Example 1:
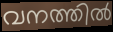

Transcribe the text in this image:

വനത്തിൽ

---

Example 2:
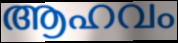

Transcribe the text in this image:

ആഹവം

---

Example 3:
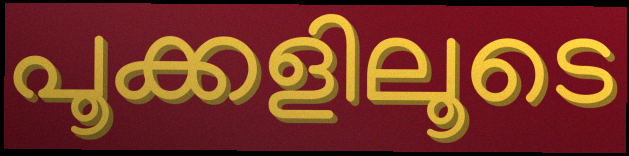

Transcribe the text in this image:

പൂക്കളിലൂടെ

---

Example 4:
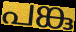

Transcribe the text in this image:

പങ്കു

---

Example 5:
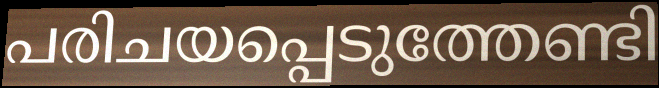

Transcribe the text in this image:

പരിചയപ്പെടുത്തേണ്ടി